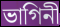
ভাগিনী